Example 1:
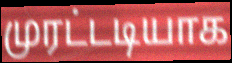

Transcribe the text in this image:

முரட்டடியாக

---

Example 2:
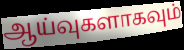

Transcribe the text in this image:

ஆய்வுகளாகவும்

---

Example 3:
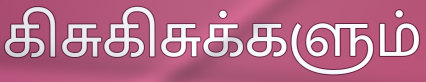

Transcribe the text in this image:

கிசுகிசுக்களும்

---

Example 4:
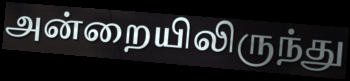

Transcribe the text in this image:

அன்றையிலிருந்து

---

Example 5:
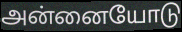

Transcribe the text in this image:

அன்னையோடு